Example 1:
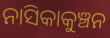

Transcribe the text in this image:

ନାସିକାକୁଞ୍ଚନ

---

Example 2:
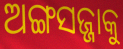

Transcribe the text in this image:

ଅଙ୍ଗସଜ୍ଜାକୁ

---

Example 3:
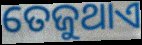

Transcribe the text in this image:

ତେଜୁଥାଏ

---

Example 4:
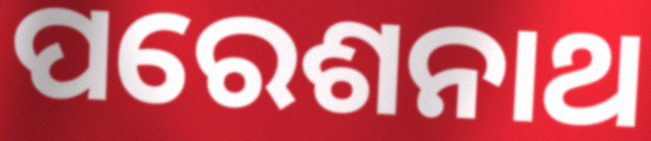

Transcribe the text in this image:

ପରେଶନାଥ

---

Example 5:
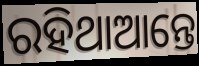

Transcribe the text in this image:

ରହିଥାଆନ୍ତେ